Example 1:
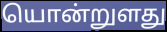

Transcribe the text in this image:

யொன்றுளது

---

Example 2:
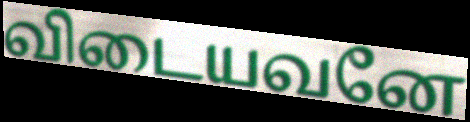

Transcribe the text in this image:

விடையவனே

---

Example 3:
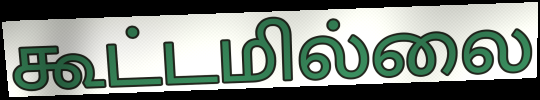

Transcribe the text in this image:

கூட்டமில்லை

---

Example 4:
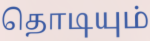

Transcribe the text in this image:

தொடியும்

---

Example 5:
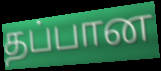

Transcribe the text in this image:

தப்பான